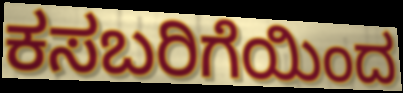
ಕಸಬರಿಗೆಯಿಂದ